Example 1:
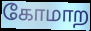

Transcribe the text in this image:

கோமாற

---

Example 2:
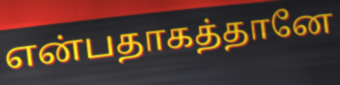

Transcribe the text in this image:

என்பதாகத்தானே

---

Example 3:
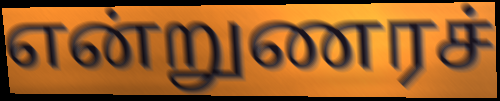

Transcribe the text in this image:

என்றுணரச்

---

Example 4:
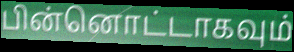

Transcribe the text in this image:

பின்னொட்டாகவும்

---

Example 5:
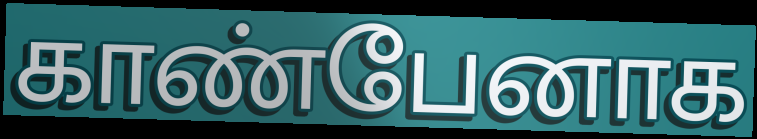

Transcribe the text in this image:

காண்பேனாக